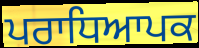
ਪਰਾਧਿਆਪਕ